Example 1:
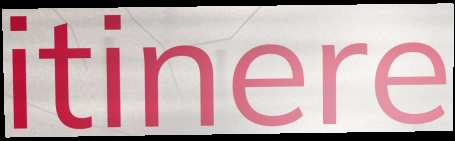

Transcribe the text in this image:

itinere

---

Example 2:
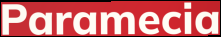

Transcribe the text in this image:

Paramecia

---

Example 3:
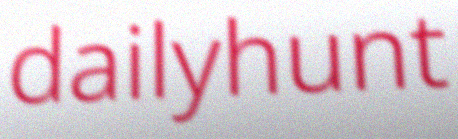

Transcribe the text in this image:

dailyhunt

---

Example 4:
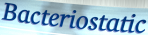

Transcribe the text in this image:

Bacteriostatic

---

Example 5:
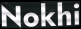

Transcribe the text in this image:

Nokhi